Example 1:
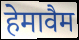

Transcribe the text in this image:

हेमावैम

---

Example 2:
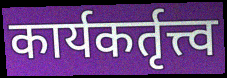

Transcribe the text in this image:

कार्यकर्तृत्त्व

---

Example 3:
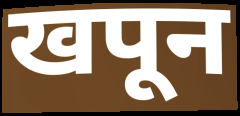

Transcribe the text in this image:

खपून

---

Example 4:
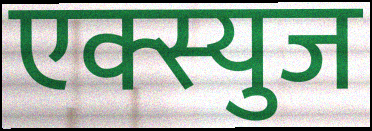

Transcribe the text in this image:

एक्स्युज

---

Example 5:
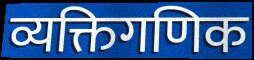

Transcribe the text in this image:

व्यक्तिगणिक